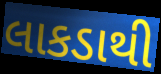
લાકડાથી